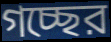
গচ্ছের